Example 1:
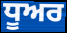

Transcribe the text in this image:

ਧੂਅਰ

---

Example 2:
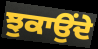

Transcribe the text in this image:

ਝੁਕਾਉਂਦੇ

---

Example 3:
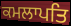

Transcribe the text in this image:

ਕਮਲਾਪਤਿ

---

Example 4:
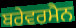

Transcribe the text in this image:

ਬਰੇਵਰਮੈਨ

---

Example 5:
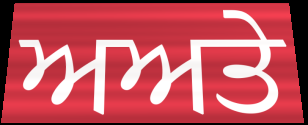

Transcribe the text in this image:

ਅਅਤੇ